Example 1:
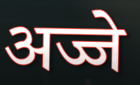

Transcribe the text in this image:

अज्जे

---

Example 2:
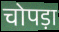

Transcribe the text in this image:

चोपड़ा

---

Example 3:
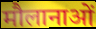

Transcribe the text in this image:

मौलानाओं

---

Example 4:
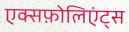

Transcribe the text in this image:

एक्सफ़ोलिएंट्स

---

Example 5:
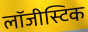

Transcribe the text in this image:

लॉजीस्टिक